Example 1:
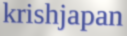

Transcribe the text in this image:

krishjapan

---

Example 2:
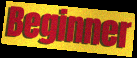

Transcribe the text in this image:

Beginner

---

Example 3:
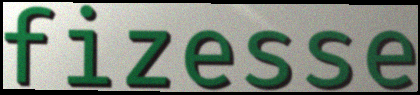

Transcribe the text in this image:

fizesse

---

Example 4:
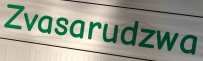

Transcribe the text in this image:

Zvasarudzwa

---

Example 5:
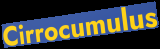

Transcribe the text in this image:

Cirrocumulus